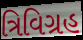
ત્રિવિગ્રહ